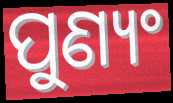
ପୁଣ୍ୟଂ